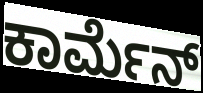
ಕಾರ್ಮೆನ್